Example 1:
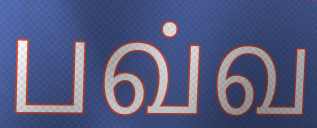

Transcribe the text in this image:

பவ்வ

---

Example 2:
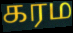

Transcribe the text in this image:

கரம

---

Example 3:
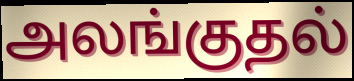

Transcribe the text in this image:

அலங்குதல்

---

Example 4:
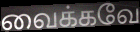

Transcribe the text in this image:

வைக்கவே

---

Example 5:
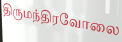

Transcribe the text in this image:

திருமந்திரவோலை